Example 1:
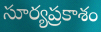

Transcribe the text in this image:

సూర్యప్రకాశం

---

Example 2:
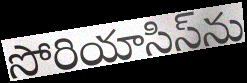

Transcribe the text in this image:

సోరియాసిస్‌ను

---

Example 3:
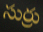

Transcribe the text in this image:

సుర్రు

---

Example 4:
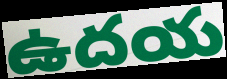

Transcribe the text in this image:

ఉదయ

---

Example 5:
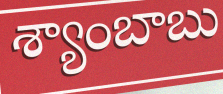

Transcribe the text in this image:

శ్యాంబాబు